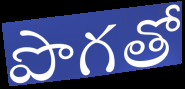
పొగతో